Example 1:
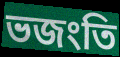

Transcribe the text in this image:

ভজংতি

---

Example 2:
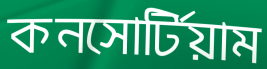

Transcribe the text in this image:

কনসোর্টিয়াম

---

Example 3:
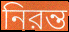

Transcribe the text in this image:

নিরন্ত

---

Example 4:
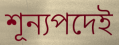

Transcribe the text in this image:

শূন্যপদেই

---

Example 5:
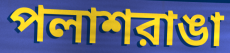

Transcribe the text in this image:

পলাশরাঙা